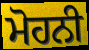
ਮੋਹਨੀ